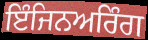
ਇੰਜਿਨਅਰਿੰਗ